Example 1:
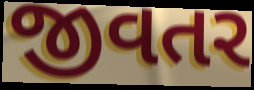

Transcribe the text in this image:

જીવતર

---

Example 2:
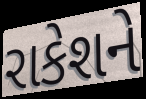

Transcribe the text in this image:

રાકેશને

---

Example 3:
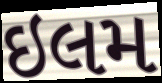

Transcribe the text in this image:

ઇલમ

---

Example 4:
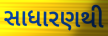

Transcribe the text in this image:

સાધારણથી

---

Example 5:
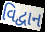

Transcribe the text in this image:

વિદ્વાન